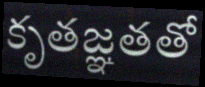
కృతజ్ఞతతో